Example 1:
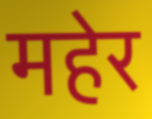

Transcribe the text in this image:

महेर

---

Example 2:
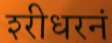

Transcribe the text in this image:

श्रीधरनं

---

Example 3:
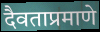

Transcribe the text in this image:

दैवताप्रमाणे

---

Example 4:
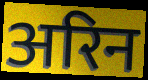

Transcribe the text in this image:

अरिन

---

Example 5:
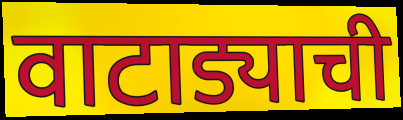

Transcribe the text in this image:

वाटाड्याची